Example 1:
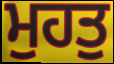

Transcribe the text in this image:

ਮੁਹਤੁ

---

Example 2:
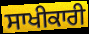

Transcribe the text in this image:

ਸਾਖੀਕਾਰੀ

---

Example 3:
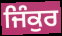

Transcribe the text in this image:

ਜਿੰਕੁਰ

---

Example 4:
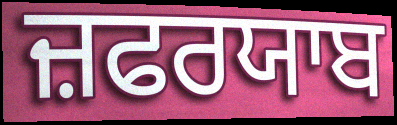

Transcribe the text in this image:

ਜ਼ਫਰਯਾਬ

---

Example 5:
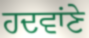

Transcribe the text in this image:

ਹਦਵਾਂਣੇ